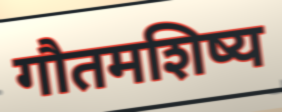
गौतमशिष्य